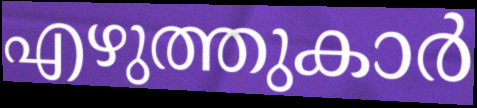
എഴുത്തുകാർ